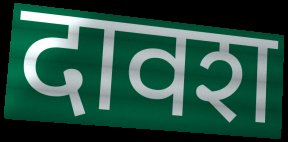
दावश